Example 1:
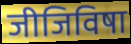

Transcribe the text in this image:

जीजिविषा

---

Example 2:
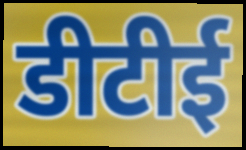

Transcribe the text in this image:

डीटीई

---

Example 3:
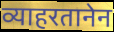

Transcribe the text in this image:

व्याहरतानेन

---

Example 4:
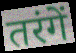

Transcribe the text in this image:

तरंगें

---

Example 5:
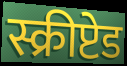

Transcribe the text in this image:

स्क्रीप्टेड